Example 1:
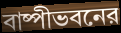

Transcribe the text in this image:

বাষ্পীভবনের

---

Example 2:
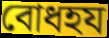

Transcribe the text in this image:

বোধহয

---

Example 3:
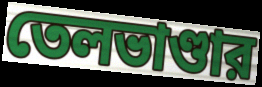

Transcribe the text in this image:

তেলভাণ্ডার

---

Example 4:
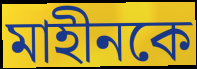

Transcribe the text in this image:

মাহীনকে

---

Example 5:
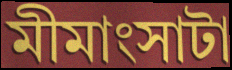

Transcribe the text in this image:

মীমাংসাটা